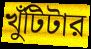
খুঁটিটার